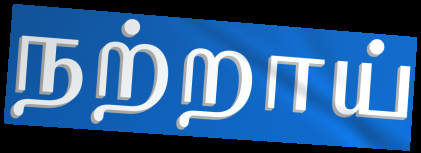
நற்றாய்